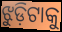
ଝୁଡ଼ିଟାକୁ